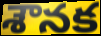
శౌనక